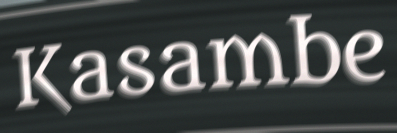
Kasambe